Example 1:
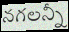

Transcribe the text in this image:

నగలన్నీ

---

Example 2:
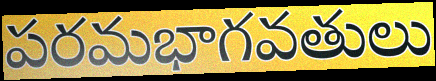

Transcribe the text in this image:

పరమభాగవతులు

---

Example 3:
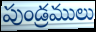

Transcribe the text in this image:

పుండ్రములు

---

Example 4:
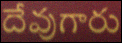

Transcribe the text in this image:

దేవుగారు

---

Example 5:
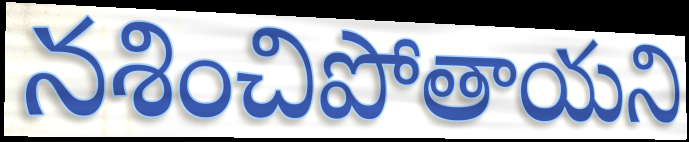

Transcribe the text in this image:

నశించిపోతాయని